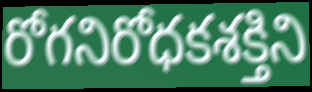
రోగనిరోధకశక్తిని